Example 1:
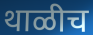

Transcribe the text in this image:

थाळीच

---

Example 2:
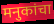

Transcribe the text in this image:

मनुकांचा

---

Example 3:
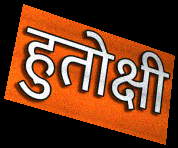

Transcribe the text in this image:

हुतोक्षी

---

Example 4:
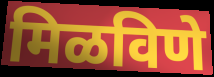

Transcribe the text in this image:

मिळविणे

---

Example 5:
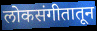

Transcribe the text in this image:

लोकसंगीतातून